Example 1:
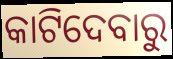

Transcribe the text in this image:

କାଟିଦେବାରୁ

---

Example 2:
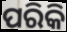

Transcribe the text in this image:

ପରିକି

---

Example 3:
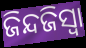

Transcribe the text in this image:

ଜିନ୍ଦଜିସ୍ୱା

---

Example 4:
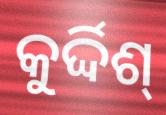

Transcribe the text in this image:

କୁର୍ଦ୍ଦିଶ୍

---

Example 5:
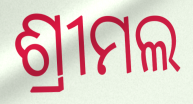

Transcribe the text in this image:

ଶ୍ରୀମଲ